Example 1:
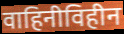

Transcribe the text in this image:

वाहिनीविहीन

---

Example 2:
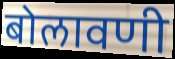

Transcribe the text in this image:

बोलावणी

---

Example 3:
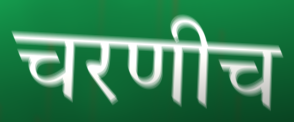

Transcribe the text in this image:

चरणीच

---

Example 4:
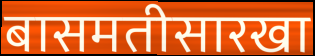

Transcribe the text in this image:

बासमतीसारखा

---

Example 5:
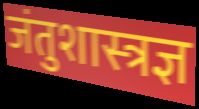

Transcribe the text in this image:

जंतुशास्त्रज्ञ